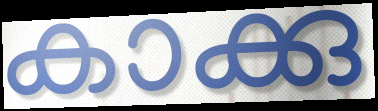
കാക്കു